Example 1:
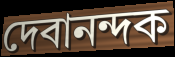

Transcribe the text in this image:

দেবানন্দক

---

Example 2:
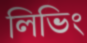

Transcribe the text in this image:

লিভিং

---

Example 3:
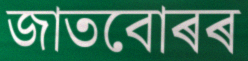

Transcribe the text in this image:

জাতবোৰৰ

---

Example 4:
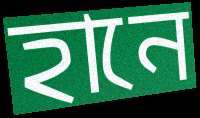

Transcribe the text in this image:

হানে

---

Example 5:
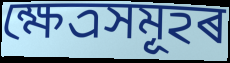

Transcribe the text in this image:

ক্ষেত্ৰসমূহৰ